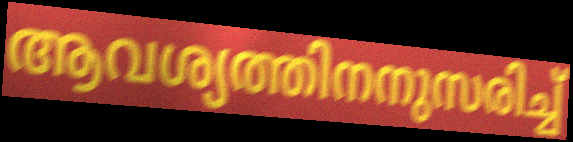
ആവശ്യത്തിനനുസരിച്ച്